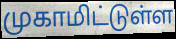
முகாமிட்டுள்ள